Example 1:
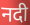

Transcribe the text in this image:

नदी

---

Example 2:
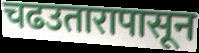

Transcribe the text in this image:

चढउतारापासून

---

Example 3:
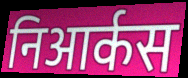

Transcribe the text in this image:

निआर्कस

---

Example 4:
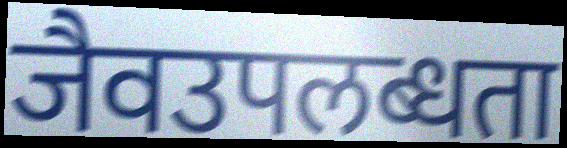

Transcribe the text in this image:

जैवउपलब्धता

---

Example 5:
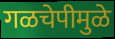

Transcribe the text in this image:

गळचेपीमुळे